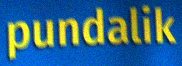
pundalik